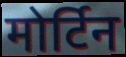
मोर्टिन